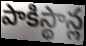
పాకిస్థాన్ల